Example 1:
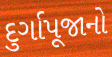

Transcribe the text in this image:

દુર્ગાપૂજાનો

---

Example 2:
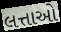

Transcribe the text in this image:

લત્તાઓ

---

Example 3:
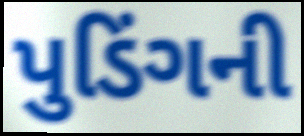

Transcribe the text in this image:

પુડિંગની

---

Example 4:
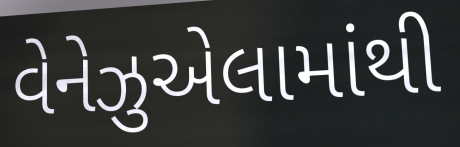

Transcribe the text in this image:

વેનેઝુએલામાંથી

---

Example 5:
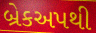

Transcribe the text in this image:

બ્રેકઅપથી